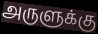
அருளுக்கு